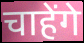
चाहेंगे